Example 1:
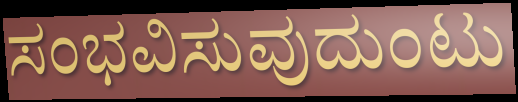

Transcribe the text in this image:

ಸಂಭವಿಸುವುದುಂಟು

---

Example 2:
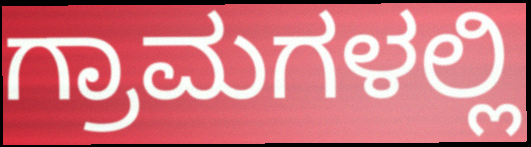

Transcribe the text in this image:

ಗ್ರಾಮಗಳಲ್ಲಿ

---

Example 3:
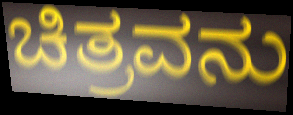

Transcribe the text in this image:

ಚಿತ್ರವನು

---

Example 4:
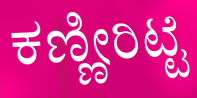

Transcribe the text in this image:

ಕಣ್ಣೀರಿಟ್ಟೆ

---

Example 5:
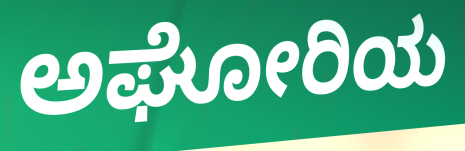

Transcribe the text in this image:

ಅಘೋರಿಯ